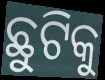
ଛୁଟିକୁ